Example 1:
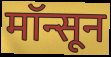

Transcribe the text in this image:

मॉन्सून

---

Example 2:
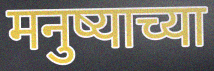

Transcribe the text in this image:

मनुष्याच्या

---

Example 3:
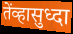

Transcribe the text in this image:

तेंव्हासुध्दा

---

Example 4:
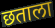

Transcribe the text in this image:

छताला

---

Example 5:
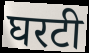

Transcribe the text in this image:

घरटी